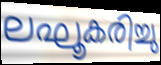
ലഘൂകരിച്ചു